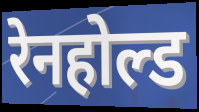
रेनहोल्ड